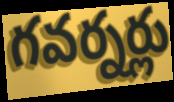
గవర్నర్లు